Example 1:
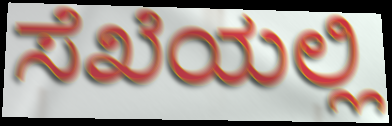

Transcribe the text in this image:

ಸೆಖೆಯಲ್ಲಿ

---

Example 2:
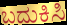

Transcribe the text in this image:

ಬದುಕಿಸಿ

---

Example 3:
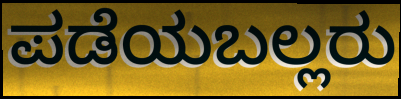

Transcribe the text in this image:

ಪಡೆಯಬಲ್ಲರು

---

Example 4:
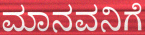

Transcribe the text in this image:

ಮಾನವನಿಗೆ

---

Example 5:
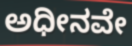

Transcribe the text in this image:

ಅಧೀನವೇ